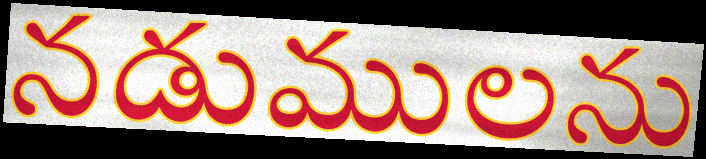
నడుములను